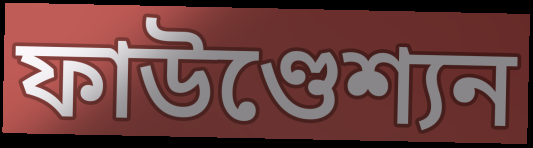
ফাউণ্ডেশ্যন